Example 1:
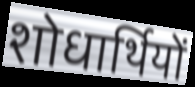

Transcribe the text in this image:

शोधार्थियों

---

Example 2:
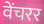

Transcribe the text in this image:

वेंचरर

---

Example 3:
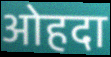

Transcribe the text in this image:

ओहदा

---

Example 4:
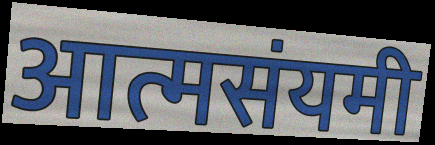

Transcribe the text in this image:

आत्मसंयमी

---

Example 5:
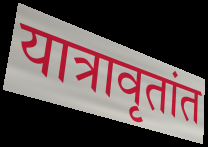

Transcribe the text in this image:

यात्रावृतांत